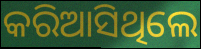
କରିଆସିଥିଲେ